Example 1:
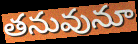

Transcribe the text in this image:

తనువునూ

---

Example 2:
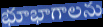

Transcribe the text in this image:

భూభాగాలను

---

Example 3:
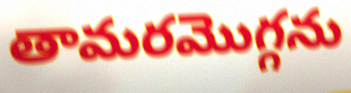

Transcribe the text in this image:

తామరమొగ్గను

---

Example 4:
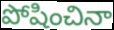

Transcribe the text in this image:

పోషించినా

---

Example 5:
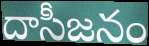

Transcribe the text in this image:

దాసీజనం